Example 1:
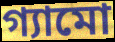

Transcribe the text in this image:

গ্যামো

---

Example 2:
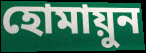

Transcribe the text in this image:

হোমায়ুন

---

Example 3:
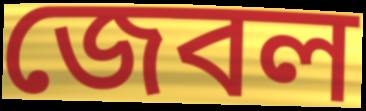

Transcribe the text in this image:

জেবল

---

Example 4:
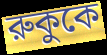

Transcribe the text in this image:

রুকুকে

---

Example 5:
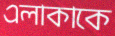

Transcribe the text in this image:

এলাকাকে